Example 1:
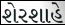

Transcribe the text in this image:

શેરશાહે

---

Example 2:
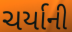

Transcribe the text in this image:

ચર્યાની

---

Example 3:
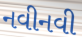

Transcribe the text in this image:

નવીનવી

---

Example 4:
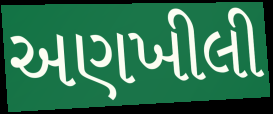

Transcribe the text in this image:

અણખીલી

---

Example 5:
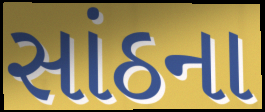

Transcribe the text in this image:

સાંઠના